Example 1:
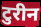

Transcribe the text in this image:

टुरीन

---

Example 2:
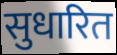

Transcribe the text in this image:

सुधारित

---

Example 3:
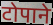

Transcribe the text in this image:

टोपाने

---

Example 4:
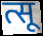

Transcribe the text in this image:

त्सू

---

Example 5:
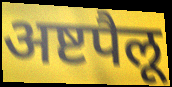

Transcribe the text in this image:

अष्टपैलू